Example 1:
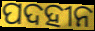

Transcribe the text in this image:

ପଦହୀନ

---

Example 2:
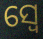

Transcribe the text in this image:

ସ୍ୱେ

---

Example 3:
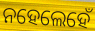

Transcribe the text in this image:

ନହେଲେହେଁ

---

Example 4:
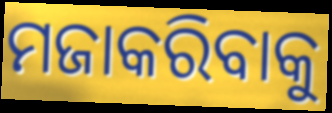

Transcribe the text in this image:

ମଜାକରିବାକୁ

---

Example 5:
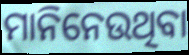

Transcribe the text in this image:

ମାନିନେଉଥିବା